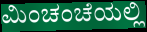
ಮಿಂಚಂಚೆಯಲ್ಲಿ